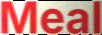
Meal